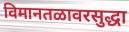
विमानतळावरसुद्धा